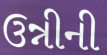
ઉન્નીની